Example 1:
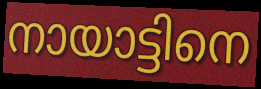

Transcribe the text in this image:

നായാട്ടിനെ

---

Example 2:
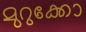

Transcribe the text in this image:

മുറുക്കോ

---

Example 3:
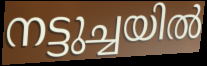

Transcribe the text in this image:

നട്ടുച്ചയിൽ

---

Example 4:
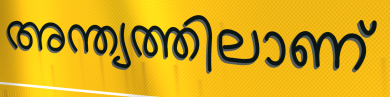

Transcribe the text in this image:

അന്ത്യത്തിലാണ്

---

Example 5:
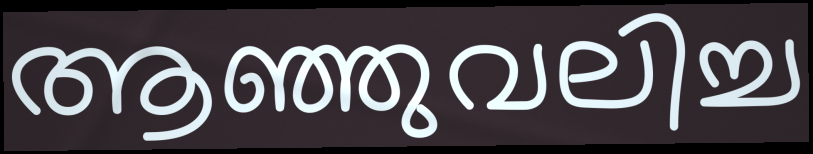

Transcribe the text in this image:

ആഞ്ഞുവലിച്ച